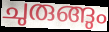
ചുരുങ്ങും